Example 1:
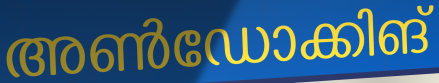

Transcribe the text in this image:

അൺഡോക്കിങ്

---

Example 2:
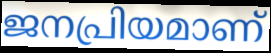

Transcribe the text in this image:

ജനപ്രിയമാണ്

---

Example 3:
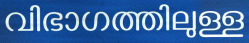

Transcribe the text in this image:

വിഭാഗത്തിലുള്ള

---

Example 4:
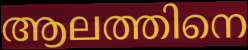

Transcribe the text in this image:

ആലത്തിനെ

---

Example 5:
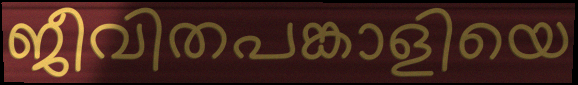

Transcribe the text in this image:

ജീവിതപങ്കാളിയെ